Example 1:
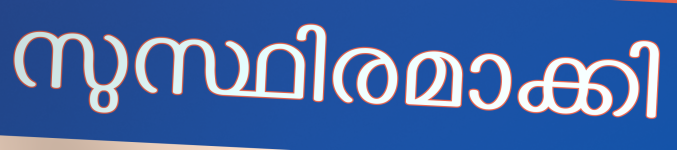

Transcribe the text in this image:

സുസ്ഥിരമാക്കി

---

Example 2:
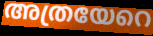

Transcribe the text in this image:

അത്രയേറെ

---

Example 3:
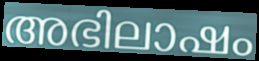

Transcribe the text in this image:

അഭിലാഷം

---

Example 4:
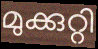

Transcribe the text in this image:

മുക്കുറ്റി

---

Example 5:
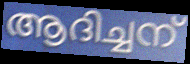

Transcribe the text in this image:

ആദിച്ചന്